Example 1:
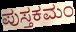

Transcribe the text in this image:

ಪುಸ್ತಕಮಂ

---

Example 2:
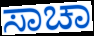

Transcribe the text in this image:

ಸಾಚಾ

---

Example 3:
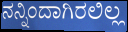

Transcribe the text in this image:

ನನ್ನಿಂದಾಗಿರಲಿಲ್ಲ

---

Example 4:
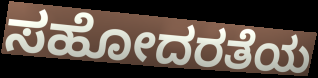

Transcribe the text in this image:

ಸಹೋದರತೆಯ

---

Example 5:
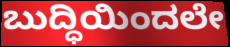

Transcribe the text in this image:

ಬುದ್ಧಿಯಿಂದಲೇ